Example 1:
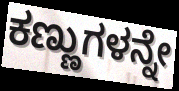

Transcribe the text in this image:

ಕಣ್ಣುಗಳನ್ನೇ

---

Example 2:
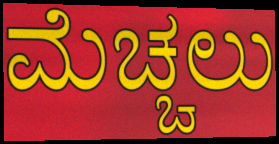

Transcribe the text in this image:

ಮೆಚ್ಚಲು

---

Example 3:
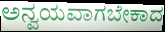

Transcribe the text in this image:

ಅನ್ವಯವಾಗಬೇಕಾದ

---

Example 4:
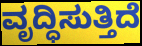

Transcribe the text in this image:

ವೃದ್ಧಿಸುತ್ತಿದೆ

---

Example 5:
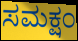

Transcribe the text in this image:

ಸಮಕ್ಷಂ